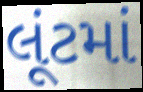
લૂંટમાં